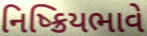
નિષ્ક્રિયભાવે